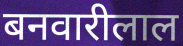
बनवारीलाल